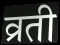
व्रती